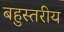
बहुस्तरीय